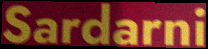
Sardarni